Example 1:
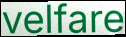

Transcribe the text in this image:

velfare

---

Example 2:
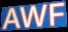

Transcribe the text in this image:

AWF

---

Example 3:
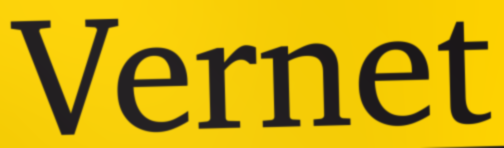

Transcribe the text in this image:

Vernet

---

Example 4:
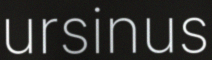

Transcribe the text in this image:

ursinus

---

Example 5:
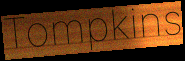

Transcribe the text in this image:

Tompkins